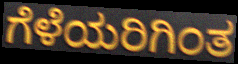
ಗೆಳೆಯರಿಗಿಂತ